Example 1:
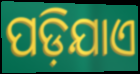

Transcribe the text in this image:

ପଡ଼ିଯାଏ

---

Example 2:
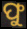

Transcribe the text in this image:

ଫୁ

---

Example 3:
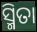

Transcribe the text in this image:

ସ୍ମିତା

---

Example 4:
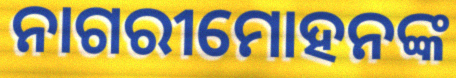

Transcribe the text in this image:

ନାଗରୀମୋହନଙ୍କ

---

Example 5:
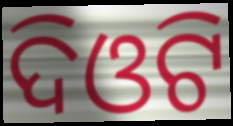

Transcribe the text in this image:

ଦିଓଟି